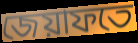
জেয়াফতে